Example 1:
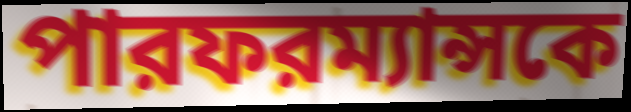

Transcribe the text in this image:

পারফরম্যান্সকে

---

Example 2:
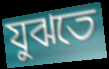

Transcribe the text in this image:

যুঝতে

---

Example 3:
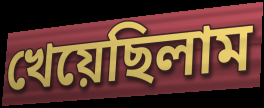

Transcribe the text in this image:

খেয়েছিলাম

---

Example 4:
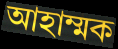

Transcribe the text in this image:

আহাম্মক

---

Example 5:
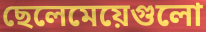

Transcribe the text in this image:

ছেলেমেয়েগুলো